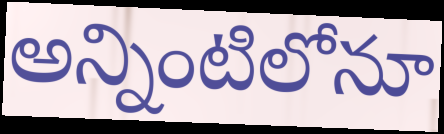
అన్నింటిలోనూ